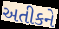
અતીકને